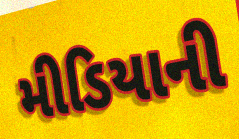
મીડિયાની